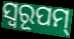
ସ୍ଵରୂପମ୍